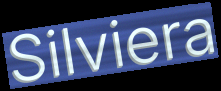
Silviera